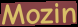
Mozin